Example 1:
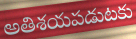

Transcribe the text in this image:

అతిశయపడుటకు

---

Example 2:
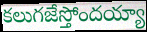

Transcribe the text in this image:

కలుగజేస్తోందయ్యా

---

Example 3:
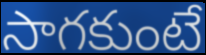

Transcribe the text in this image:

సాగకుంటే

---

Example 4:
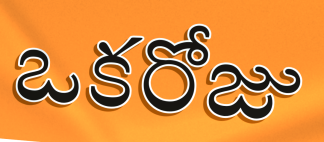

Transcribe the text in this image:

ఒకరోజు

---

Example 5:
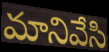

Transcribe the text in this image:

మానివేసి